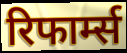
रिफार्म्स